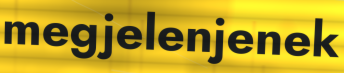
megjelenjenek